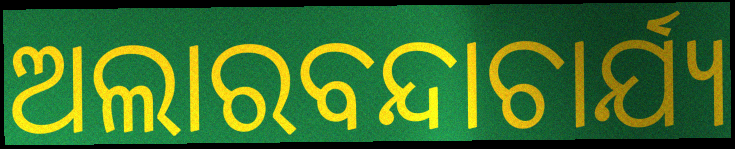
ଅଲାରବନ୍ଦାଚାର୍ଯ୍ୟ